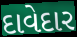
દાવેદાર